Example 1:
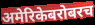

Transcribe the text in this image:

अमेरिकेबरोबरच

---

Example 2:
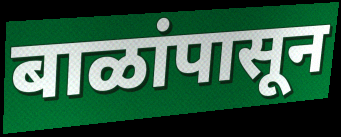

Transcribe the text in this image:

बाळांपासून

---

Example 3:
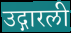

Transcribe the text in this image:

उद्गारली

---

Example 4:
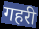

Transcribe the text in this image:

गहरी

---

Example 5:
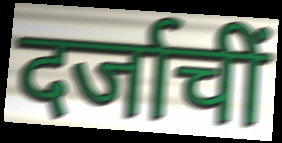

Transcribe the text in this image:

दर्जाचीं